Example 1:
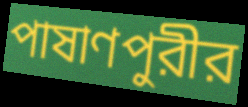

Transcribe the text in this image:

পাষাণপুরীর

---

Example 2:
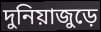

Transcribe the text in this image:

দুনিয়াজুড়ে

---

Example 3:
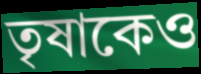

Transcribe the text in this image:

তৃষাকেও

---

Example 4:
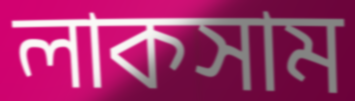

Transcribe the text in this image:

লাকসাম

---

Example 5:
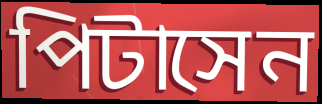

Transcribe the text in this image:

পিটাসেন